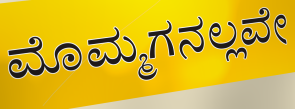
ಮೊಮ್ಮಗನಲ್ಲವೇ